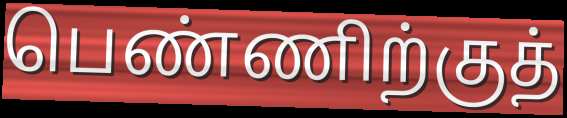
பெண்ணிற்குத்